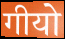
गीयो